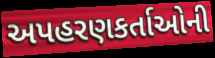
અપહરણકર્તાઓની